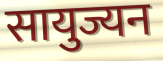
सायुज्यन